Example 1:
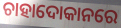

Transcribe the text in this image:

ଚାହାଦୋକାନରେ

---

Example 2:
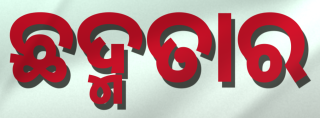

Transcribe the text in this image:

ଛଦ୍ମତାର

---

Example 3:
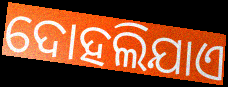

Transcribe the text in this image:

ଦୋହଲିଯାଏ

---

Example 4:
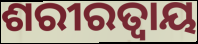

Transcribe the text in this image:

ଶରୀରତ୍ୱାୟ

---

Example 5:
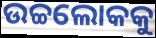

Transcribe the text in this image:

ଉଚ୍ଚଲୋକକୁ